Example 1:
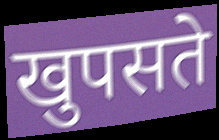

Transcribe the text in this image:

खुपसते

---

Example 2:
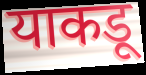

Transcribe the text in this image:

याकडू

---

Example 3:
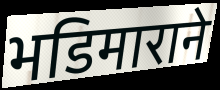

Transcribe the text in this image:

भडिमाराने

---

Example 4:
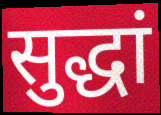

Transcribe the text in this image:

सुद्धां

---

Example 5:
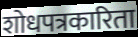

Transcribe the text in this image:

शोधपत्रकारिता